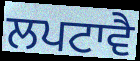
ਲਪਟਾਵੈ